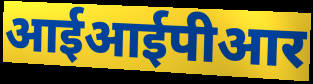
आईआईपीआर